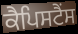
ਕੈਪਿਸਟੈਂਸ